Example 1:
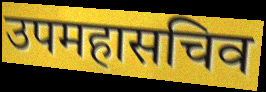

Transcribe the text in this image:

उपमहासचिव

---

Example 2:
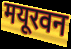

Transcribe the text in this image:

मयूरवन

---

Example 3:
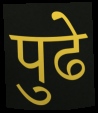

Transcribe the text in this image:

पुढे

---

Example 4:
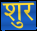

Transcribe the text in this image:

शुर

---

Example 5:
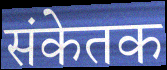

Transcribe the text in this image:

संकेतक